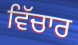
ਵਿੱਚਾਰ